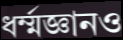
ধর্ম্মজ্ঞানও